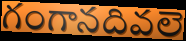
గంగానదివలె